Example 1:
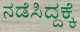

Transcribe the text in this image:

ನಡೆಸಿದ್ದಕ್ಕೆ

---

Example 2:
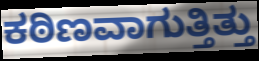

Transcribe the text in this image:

ಕಠಿಣವಾಗುತ್ತಿತ್ತು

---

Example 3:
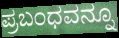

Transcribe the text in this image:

ಪ್ರಬಂಧವನ್ನೂ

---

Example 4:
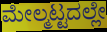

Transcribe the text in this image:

ಮೇಲ್ಮಟ್ಟದಲ್ಲೇ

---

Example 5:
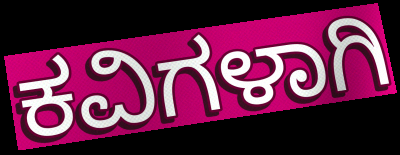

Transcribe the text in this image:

ಕವಿಗಳಾಗಿ